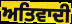
ਅਤਿਵਾਦੀ